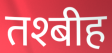
तश्बीह